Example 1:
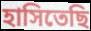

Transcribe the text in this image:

হাসিতেছি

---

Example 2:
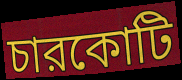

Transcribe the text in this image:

চারকোটি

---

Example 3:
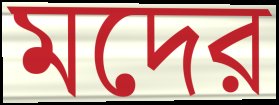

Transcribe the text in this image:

মদের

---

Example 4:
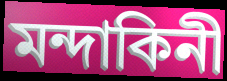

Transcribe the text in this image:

মন্দাকিনী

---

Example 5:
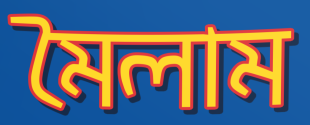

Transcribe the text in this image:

মৈলাম